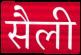
सैली